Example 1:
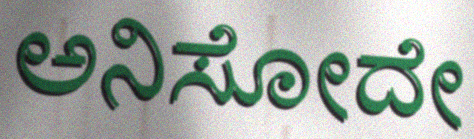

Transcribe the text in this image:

ಅನಿಸೋದೇ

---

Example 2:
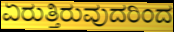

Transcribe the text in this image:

ಏರುತ್ತಿರುವುದರಿಂದ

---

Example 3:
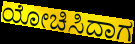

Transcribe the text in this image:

ಯೋಚಿಸಿದಾಗ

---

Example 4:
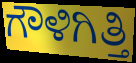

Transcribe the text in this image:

ಗೌಳಿಗಿತ್ತಿ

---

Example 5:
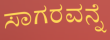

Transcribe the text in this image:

ಸಾಗರವನ್ನೆ